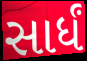
સાર્ધં